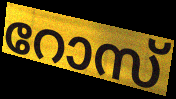
റോസ്